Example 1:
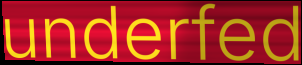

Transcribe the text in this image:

underfed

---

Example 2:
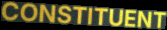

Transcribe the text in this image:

CONSTITUENT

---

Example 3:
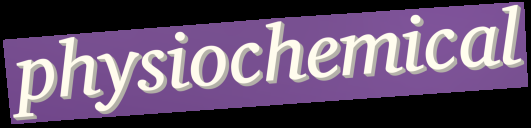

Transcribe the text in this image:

physiochemical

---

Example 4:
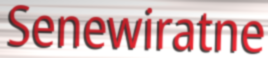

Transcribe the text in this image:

Senewiratne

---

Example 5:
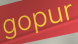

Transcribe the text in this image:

gopur